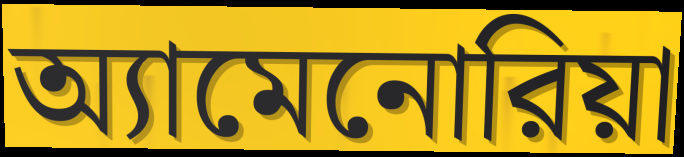
অ্যামেনোরিয়া